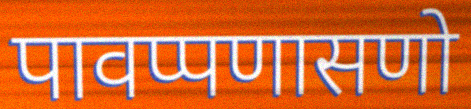
पावप्पणासणो